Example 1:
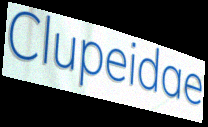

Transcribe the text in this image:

Clupeidae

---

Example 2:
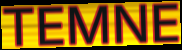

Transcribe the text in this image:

TEMNE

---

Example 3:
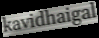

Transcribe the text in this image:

kavidhaigal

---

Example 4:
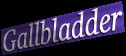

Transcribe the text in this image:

Gallbladder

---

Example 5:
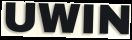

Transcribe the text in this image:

UWIN